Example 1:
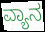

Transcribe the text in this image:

ವ್ಯಾನ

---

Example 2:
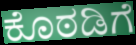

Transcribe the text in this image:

ಕೊಠಡಿಗೆ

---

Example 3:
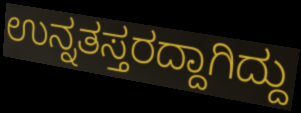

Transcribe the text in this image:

ಉನ್ನತಸ್ತರದ್ದಾಗಿದ್ದು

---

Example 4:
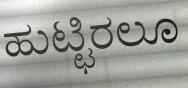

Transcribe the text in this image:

ಹುಟ್ಟಿರಲೂ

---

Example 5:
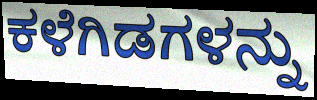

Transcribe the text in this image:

ಕಳೆಗಿಡಗಳನ್ನು